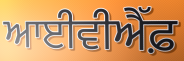
ਆਈਵੀਐੱਫ਼